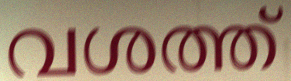
വശത്ത്